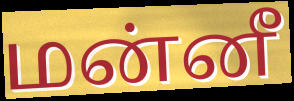
மன்னீ